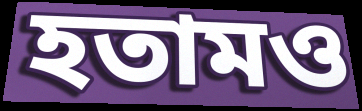
হতামও